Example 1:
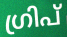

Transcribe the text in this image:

ഗ്രിപ്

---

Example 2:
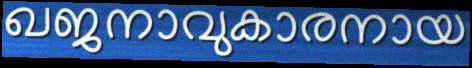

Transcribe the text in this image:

ഖജനാവുകാരനായ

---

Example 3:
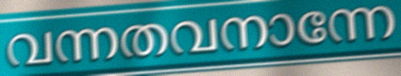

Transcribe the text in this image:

വന്നതവനാന്നേ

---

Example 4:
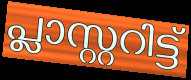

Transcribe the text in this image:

പ്ലാസ്റ്ററിട്ട്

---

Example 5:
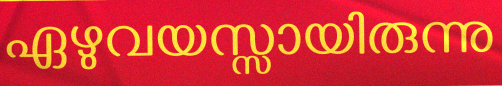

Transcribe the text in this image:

ഏഴുവയസ്സായിരുന്നു